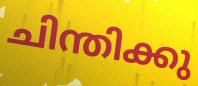
ചിന്തിക്കു